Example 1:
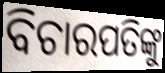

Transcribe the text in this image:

ବିଚାରପତିଙ୍କୁ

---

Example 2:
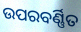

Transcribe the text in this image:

ଉପରବର୍ଣ୍ଣିତ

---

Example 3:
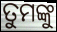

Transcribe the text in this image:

ତୁମଙ୍କୁ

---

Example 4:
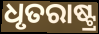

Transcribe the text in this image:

ଧୃତରାଷ୍ଟ୍ର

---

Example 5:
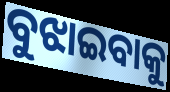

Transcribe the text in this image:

ବୁଝାଇବାକୁ